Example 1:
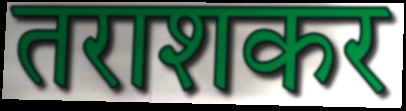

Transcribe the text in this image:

तराशकर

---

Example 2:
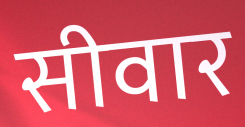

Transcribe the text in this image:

सीवार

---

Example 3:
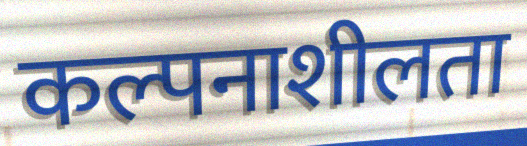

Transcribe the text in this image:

कल्पनाशीलता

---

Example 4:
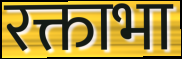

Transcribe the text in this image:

रक्ताभा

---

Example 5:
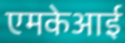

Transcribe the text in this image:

एमकेआई